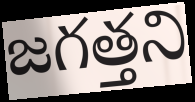
జగత్తని